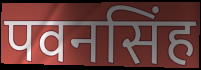
पवनसिंह